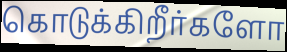
கொடுக்கிறீர்களோ